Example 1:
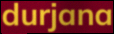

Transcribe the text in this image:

durjana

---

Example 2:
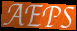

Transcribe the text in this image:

AEPS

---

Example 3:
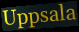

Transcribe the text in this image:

Uppsala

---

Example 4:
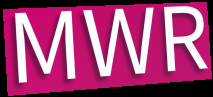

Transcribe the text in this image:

MWR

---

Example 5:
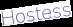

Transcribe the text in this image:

Hostess